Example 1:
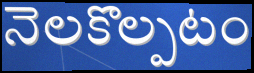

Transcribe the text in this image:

నెలకొల్పటం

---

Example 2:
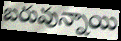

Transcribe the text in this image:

బరువున్నాయి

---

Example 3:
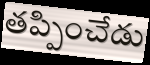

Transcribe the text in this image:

తప్పించేడు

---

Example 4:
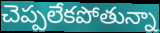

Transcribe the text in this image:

చెప్పలేకపోతున్నా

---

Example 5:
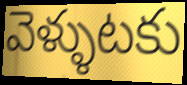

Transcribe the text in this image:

వెళ్ళుటకు